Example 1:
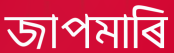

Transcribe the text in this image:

জাপমাৰি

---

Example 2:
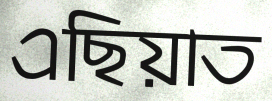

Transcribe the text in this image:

এছিয়াত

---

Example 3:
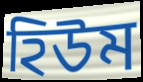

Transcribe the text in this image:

হিউম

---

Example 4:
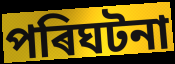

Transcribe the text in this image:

পৰিঘটনা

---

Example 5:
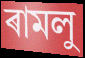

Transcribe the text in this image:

ৰামলু